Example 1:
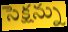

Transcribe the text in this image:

సెక్షన్ను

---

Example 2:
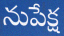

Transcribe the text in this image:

నుపేక్ష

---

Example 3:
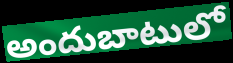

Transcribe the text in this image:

అందుబాటులో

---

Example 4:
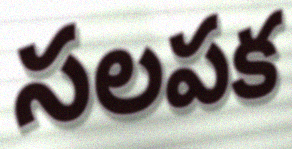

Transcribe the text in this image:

సలపక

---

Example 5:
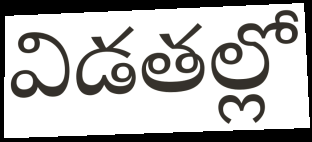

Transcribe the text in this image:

విడతల్లో